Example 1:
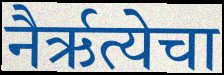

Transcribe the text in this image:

नैर्ऋत्येचा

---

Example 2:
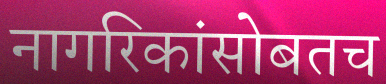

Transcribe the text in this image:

नागरिकांसोबतच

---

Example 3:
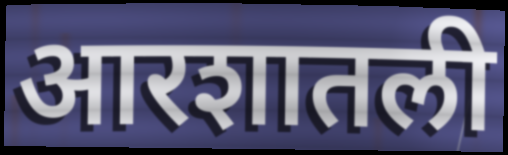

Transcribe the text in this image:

आरशातली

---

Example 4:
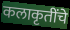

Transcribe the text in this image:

कलाकृतींचे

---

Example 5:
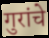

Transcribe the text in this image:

गुरांचे